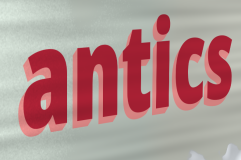
antics